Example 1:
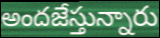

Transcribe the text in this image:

అందజేస్తున్నారు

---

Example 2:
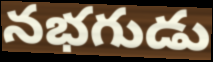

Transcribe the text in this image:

నభగుడు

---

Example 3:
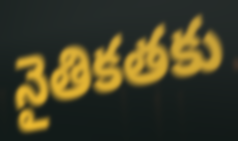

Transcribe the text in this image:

నైతికతకు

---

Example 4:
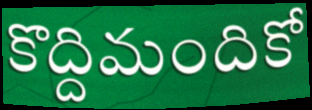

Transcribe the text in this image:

కొద్దిమందికో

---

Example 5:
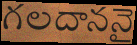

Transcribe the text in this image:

గలదాననై